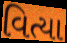
વિત્યા